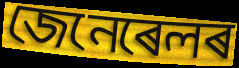
জেনেৰেলৰ